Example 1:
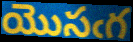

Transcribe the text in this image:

యొసఁగ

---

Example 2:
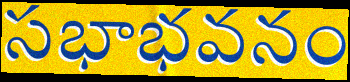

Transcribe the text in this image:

సభాభవనం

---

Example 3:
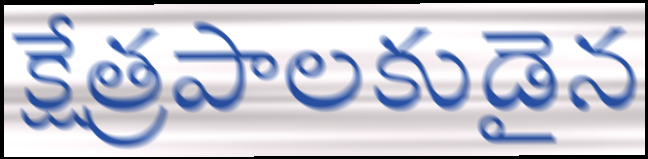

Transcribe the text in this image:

క్షేత్రపాలకుడైన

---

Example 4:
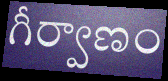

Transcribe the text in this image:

గీర్వాణం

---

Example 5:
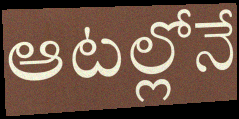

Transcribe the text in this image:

ఆటల్లోనే